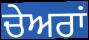
ਚੇਅਰਾਂ